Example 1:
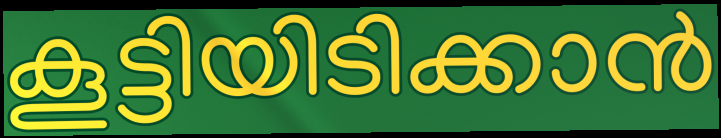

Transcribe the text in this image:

കൂട്ടിയിടിക്കാൻ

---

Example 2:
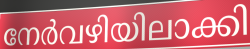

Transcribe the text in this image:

നേർവഴിയിലാക്കി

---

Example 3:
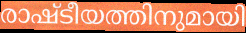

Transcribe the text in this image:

രാഷ്ടീയത്തിനുമായി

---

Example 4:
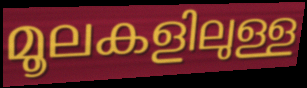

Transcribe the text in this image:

മൂലകളിലുള്ള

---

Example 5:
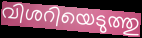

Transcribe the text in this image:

വിശറിയെടുത്തു